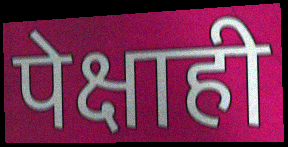
पेक्षाही